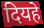
दियहे